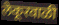
लेकूरवाळी